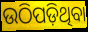
ଉଠିପଡ଼ିଥିବା